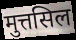
मुत्तसिल